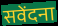
सवेंदना